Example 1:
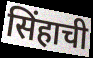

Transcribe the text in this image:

सिंहाची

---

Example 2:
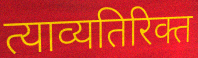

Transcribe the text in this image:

त्याव्यतिरिक्त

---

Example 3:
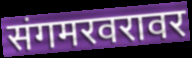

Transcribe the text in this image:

संगमरवरावर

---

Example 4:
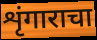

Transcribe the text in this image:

शृंगाराचा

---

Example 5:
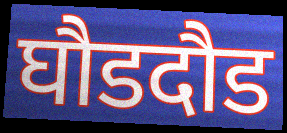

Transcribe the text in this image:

घौडदौड